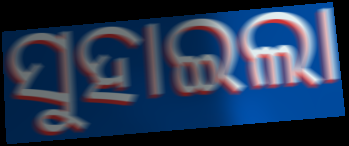
ସୁହାଇଲା